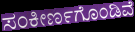
ಸಂಕೀರ್ಣಗೊಂಡಿವೆ